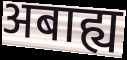
अबाह्य